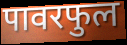
पावरफुल